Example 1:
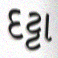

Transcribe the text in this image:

દટ્ટા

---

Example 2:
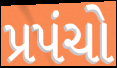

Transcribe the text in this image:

પ્રપંચો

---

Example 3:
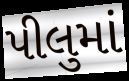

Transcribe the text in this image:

પીલુમાં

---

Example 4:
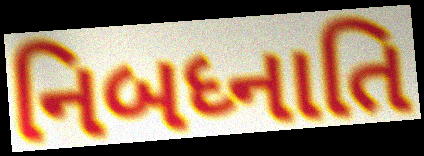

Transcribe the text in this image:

નિબધ્નાતિ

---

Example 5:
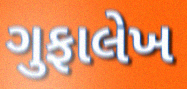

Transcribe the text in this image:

ગુફાલેખ